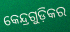
କେନ୍ଦ୍ରଗୁଡ଼ିକର